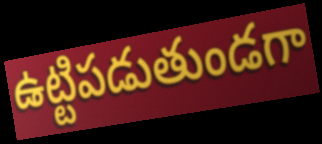
ఉట్టిపడుతుండగా